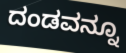
ದಂಡವನ್ನೂ